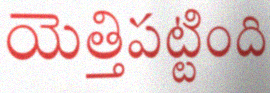
యెత్తిపట్టింది